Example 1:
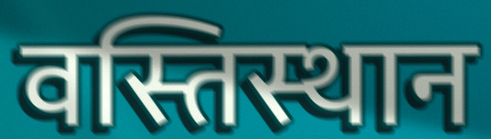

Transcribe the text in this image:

वस्तिस्थान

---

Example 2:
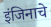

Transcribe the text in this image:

इंजिनाचे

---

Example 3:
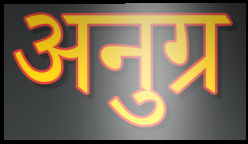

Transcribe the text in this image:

अनुग्र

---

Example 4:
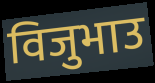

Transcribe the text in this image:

विजुभाउ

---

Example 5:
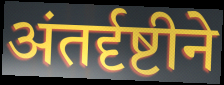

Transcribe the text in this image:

अंतर्दृष्टीने